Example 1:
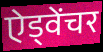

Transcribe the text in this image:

ऐड्वेंचर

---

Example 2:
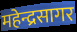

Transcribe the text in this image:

महेन्द्रसागर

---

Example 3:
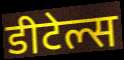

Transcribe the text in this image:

डीटेल्स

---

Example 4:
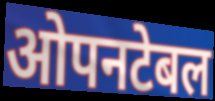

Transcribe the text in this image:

ओपनटेबल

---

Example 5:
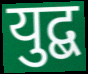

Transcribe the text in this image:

युद्ब